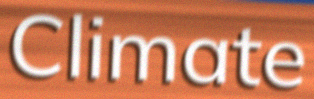
Climate